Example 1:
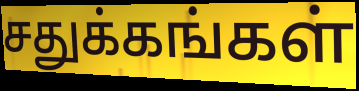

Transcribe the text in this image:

சதுக்கங்கள்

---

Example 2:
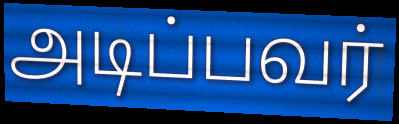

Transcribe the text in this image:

அடிப்பவர்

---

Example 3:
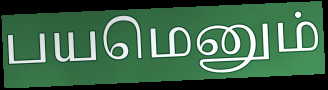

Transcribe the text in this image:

பயமெனும்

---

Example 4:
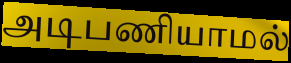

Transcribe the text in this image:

அடிபணியாமல்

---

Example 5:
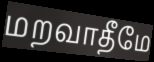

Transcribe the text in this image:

மறவாதீமே